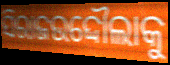
ସିରାଜଉଦ୍ଦୌଲାକୁ